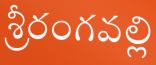
శ్రీరంగవల్లి